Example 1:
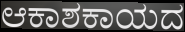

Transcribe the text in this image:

ಆಕಾಶಕಾಯದ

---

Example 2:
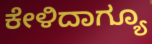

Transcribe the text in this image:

ಕೇಳಿದಾಗ್ಯೂ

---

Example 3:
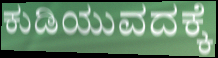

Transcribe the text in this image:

ಕುಡಿಯುವದಕ್ಕೆ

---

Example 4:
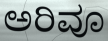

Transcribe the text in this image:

ಅರಿವೂ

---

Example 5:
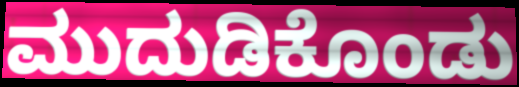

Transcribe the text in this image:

ಮುದುಡಿಕೊಂಡು